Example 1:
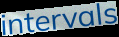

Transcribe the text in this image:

intervals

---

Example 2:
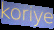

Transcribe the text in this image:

koriye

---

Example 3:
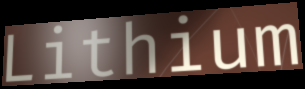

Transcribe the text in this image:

Lithium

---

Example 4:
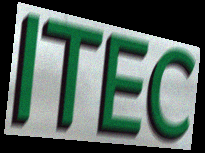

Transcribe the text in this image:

ITEC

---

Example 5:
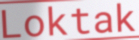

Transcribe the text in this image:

Loktak